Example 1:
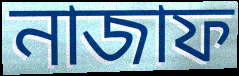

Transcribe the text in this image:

নাজাফ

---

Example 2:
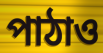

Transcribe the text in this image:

পাঠাও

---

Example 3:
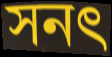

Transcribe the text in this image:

সনৎ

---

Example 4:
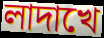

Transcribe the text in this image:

লাদাখে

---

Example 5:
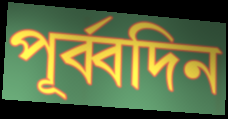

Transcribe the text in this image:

পূর্ব্বদিন